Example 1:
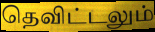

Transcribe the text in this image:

தெவிட்டலும்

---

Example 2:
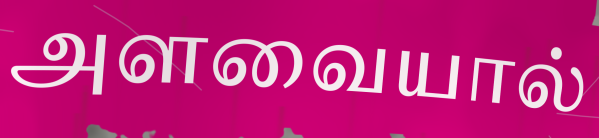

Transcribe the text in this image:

அளவையால்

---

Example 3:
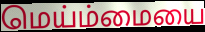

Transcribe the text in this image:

மெய்ம்மையை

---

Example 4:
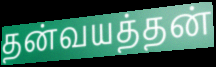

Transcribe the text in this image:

தன்வயத்தன்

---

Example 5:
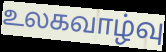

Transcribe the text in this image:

உலகவாழ்வு